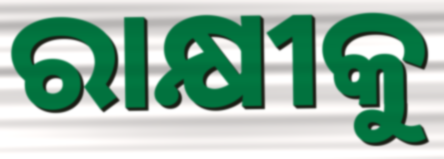
ରାକ୍ଷୀକୁ